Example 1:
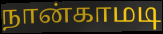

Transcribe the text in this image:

நான்காமடி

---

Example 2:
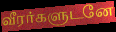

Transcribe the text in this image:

வீரர்களுடனே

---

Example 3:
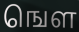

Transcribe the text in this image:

ஙௌ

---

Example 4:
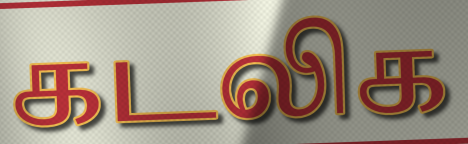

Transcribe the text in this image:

கடலிக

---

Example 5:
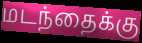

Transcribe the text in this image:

மடந்தைக்கு